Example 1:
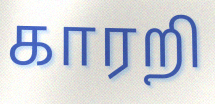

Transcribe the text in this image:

காரறி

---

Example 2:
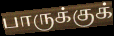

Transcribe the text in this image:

பாருக்குக்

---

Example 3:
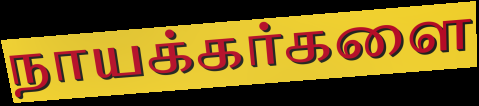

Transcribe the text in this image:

நாயக்கர்களை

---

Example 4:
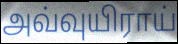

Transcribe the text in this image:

அவ்வுயிராய்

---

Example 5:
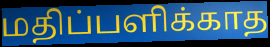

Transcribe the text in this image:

மதிப்பளிக்காத